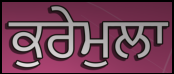
ਕੁਰੇਮੁਲਾ